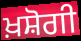
ਖ਼ਸ਼ੋਗੀ